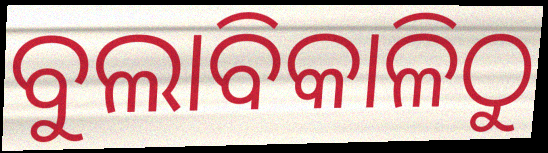
ବୁଲାବିକାଳିଠୁ